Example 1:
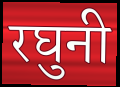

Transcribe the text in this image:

रघुनी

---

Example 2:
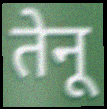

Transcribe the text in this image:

तेनू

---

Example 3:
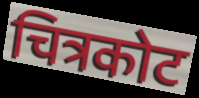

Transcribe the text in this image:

चित्रकोट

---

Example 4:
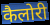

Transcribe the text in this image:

कैलोरी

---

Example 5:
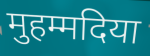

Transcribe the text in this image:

मुहम्मदिया